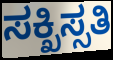
ಸಕ್ಖಿಸ್ಸತಿ